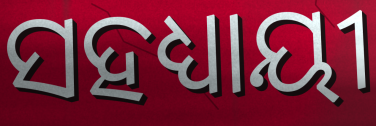
ସହଧ୍ୟାୟୀ